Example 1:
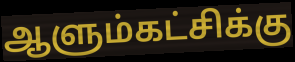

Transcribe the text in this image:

ஆளும்கட்சிக்கு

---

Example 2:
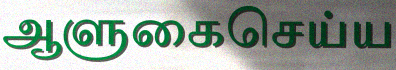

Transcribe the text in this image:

ஆளுகைசெய்ய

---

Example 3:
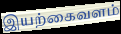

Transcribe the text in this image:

இயற்கைவளம்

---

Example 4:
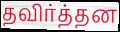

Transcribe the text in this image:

தவிர்த்தன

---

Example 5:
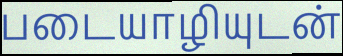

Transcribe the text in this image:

படையாழியுடன்